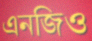
এনজিও